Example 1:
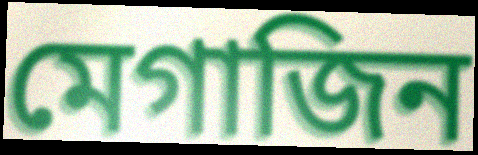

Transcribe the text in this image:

মেগাজিন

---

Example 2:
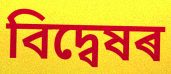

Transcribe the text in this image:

বিদ্বেষৰ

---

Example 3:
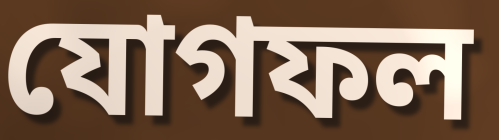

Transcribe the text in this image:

যোগফল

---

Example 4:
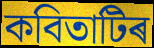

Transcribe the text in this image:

কবিতাটিৰ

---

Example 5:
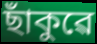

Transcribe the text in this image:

ছাঁকুৱে